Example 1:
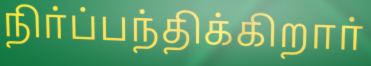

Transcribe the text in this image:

நிர்ப்பந்திக்கிறார்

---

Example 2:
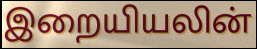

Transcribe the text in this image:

இறையியலின்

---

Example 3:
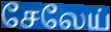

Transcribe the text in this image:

சேலேய்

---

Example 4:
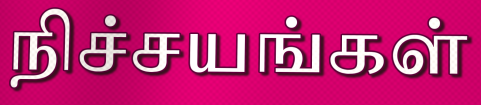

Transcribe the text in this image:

நிச்சயங்கள்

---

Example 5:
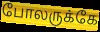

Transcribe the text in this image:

போலருக்கே